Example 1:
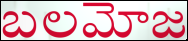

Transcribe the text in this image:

బలమోజ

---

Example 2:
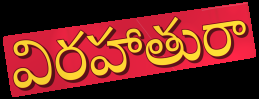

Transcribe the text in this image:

విరహాతురా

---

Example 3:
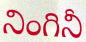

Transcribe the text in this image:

నింగినీ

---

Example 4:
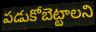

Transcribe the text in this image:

పడుకోబెట్టాలని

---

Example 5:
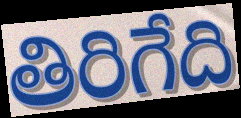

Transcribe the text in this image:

తిరిగేది